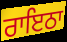
ਰਾਇਠਾ